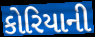
કોરિયાની